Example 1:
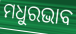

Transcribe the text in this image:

ମଧୁରଭାବ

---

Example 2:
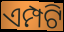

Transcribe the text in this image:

ଏମ୍ପଟି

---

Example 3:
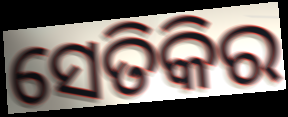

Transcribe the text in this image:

ସେତିକିର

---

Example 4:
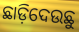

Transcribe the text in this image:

ଛାଡ଼ିଦେଉଛୁ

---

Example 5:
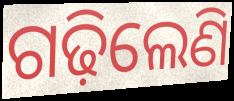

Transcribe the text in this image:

ଗଢ଼ିଲେଣି